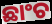
ଛାଂଚ